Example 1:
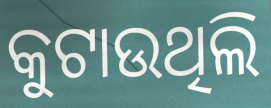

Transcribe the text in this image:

କୁଟାଉଥିଲି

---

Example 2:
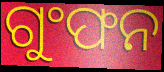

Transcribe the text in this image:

ଗୁଂଫନ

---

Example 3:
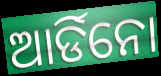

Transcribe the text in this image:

ଆର୍ଡିନୋ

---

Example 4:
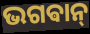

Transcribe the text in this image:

ଭଗଵାନ୍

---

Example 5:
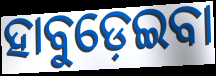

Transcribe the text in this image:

ହାବୁଡ଼େଇବା